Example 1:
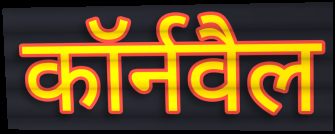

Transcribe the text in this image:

कॉर्नवैल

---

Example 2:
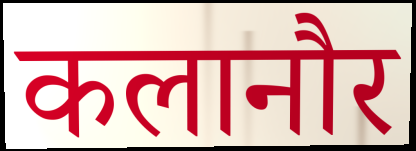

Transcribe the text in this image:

कलानौर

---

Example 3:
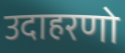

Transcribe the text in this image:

उदाहरणो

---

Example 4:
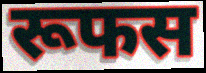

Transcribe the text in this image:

रूफस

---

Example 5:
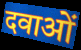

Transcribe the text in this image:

दवाओं